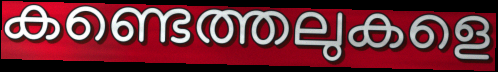
കണ്ടെത്തലുകളെ